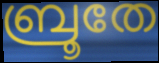
ബ്രൂതേ